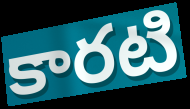
కారటి